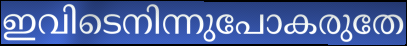
ഇവിടെനിന്നുപോകരുതേ